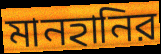
মানহানির